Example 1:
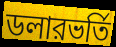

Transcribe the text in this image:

ডলারভর্তি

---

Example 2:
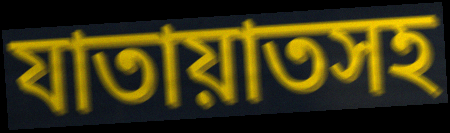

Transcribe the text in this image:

যাতায়াতসহ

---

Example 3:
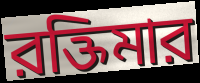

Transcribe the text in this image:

রক্তিমার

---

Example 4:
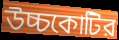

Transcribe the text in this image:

উচ্চকোটির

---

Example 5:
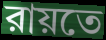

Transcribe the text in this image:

রায়তে